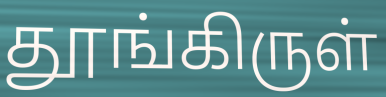
தூங்கிருள்